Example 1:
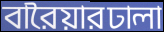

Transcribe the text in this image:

বারৈয়ারঢালা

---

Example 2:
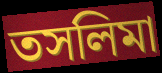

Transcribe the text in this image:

তসলিমা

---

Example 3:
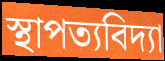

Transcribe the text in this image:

স্থাপত্যবিদ্যা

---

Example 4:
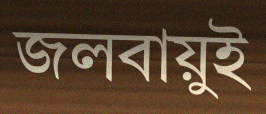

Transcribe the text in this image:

জলবায়ুই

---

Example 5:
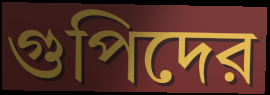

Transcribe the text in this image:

গুপিদের